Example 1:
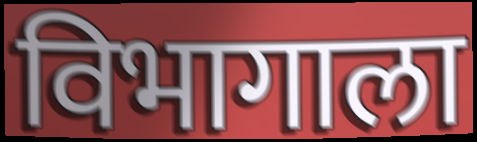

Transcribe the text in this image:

विभागाला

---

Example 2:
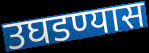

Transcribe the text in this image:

उघडण्यास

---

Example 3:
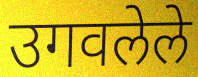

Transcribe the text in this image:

उगवलेले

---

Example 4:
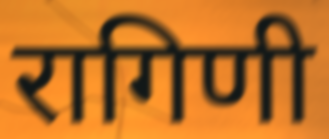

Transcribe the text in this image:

रागिणी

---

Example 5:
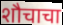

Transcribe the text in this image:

शौचाचा